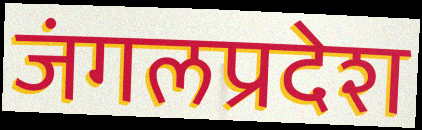
जंगलप्रदेश